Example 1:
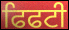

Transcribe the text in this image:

ਫਿਫਟੀ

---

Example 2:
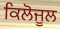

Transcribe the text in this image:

ਕਿਲੋਜੂਲ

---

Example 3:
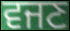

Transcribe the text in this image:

ਵਜਣ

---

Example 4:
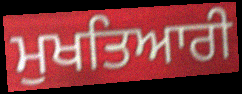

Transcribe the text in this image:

ਮੁਖਤਿਆਰੀ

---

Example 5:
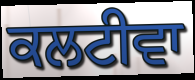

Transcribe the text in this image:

ਕਲਟੀਵਾ